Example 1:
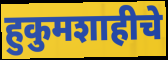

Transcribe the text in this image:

हुकुमशाहीचे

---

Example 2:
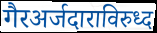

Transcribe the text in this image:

गैरअर्जदाराविरुध्द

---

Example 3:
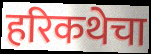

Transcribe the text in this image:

हरिकथेचा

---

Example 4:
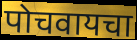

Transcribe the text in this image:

पोचवायचा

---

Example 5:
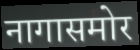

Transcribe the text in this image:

नागासमोर